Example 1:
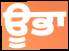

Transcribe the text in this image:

ਊਭਾ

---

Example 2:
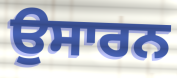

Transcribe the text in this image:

ਉਸਾਰਨ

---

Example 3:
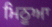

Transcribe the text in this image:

ਮਿਠੂਆ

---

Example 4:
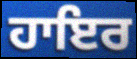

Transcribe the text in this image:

ਹਾਇਰ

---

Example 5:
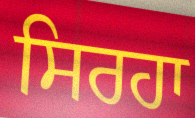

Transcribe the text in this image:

ਸਿਰਹਾ